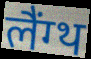
लैंग्थ